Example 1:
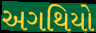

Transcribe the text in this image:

અગથિયો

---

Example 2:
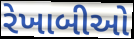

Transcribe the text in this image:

રેખાબીઓ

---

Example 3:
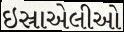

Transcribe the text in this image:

ઇસ્રાએલીઓ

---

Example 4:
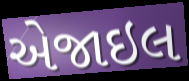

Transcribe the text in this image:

એજાઇલ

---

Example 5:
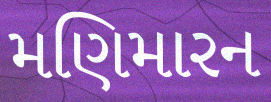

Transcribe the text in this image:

મણિમારન